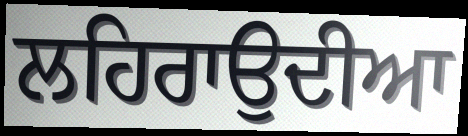
ਲਹਿਰਾਉਦੀਆ